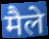
मैले